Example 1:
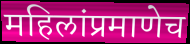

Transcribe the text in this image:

महिलांप्रमाणेच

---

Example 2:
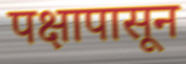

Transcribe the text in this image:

पक्षापासून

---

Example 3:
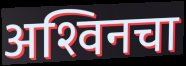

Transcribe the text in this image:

अश्विनचा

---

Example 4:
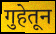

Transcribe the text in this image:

गुहेतून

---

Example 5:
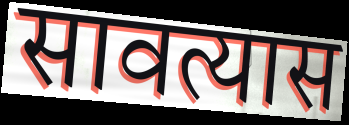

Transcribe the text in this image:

सावत्यास